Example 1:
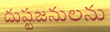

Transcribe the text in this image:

దుష్టజనులను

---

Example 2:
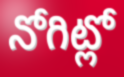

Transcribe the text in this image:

నోగిట్లో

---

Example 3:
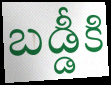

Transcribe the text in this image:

బడ్డీకి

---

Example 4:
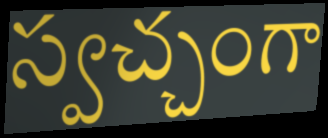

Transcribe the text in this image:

స్వచ్చంగా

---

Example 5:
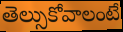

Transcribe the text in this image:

తెల్సుకోవాలంటే